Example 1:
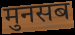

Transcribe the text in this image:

मुनसब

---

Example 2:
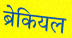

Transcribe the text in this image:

ब्रेकियल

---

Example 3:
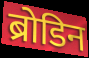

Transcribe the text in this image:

ब्रोडिन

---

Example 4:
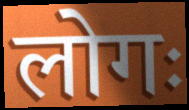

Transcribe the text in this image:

लोगः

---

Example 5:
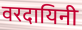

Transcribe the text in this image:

वरदायिनी